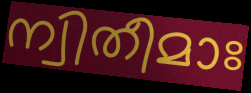
ന്വിതീമാഃ